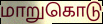
மாறுகொடு